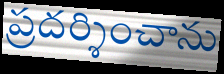
ప్రదర్శించాను